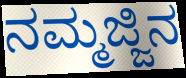
ನಮ್ಮಜ್ಜಿನ